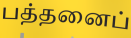
பத்தனைப்